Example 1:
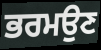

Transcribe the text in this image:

ਭਰਮਉਣ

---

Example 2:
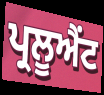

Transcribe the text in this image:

ਪ੍ਰਲੂਐਂਟ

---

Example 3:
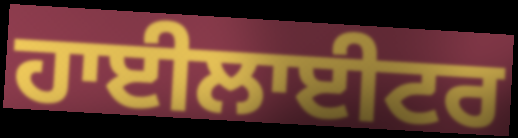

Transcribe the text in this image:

ਹਾਈਲਾਈਟਰ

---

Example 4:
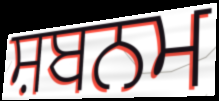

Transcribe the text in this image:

ਸ਼ਬਨਮ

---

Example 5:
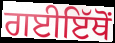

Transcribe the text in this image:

ਗਈਇੱਥੋਂ